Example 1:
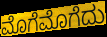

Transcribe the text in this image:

ಮೊಗೆಮೊಗೆದು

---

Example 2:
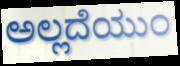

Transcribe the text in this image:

ಅಲ್ಲದೆಯುಂ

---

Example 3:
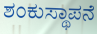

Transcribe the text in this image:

ಶಂಕುಸ್ಥಾಪನೆ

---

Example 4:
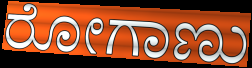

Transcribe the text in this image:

ರೋಗಾಣು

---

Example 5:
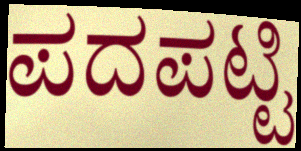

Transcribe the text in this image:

ಪದಪಟ್ಟಿ